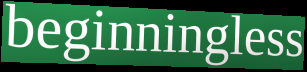
beginningless